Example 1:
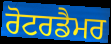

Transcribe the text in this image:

ਰੋਟਰਡੈਮਰ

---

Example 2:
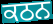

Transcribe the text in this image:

ਕਠਨ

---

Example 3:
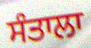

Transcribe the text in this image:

ਸੰਤਾਲਾ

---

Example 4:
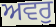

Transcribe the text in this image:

ਅਵਰੁ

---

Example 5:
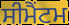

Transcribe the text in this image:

ਸੀਮੈਂਟਮ